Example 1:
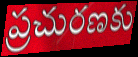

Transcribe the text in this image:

ప్రచురణకు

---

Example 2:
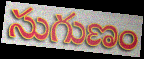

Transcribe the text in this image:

సుగుణం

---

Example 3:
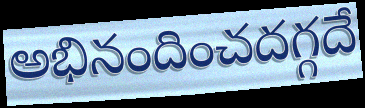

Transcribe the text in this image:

అభినందించదగ్గదే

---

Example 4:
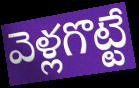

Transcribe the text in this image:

వెళ్లగొట్టే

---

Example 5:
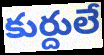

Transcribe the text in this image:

కుర్దులే